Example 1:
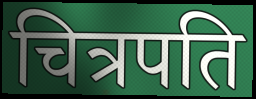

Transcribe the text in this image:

चित्रपति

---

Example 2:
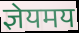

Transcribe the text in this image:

ज्ञेयमय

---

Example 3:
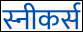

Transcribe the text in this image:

स्नीकर्स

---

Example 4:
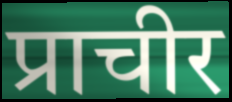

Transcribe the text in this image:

प्राचीर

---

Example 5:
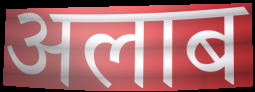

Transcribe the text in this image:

अलाब